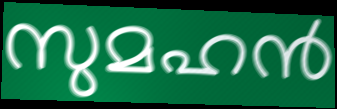
സുമഹൻ